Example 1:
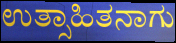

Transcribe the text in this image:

ಉತ್ಸಾಹಿತನಾಗು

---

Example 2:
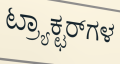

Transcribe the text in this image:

ಟ್ರ್ಯಾಕ್ಟರ್‌ಗಳ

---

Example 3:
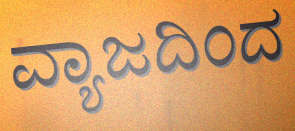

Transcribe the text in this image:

ವ್ಯಾಜದಿಂದ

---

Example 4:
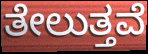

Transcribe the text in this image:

ತೇಲುತ್ತವೆ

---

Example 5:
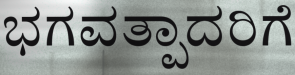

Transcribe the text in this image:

ಭಗವತ್ಪಾದರಿಗೆ